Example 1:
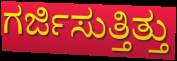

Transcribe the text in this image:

ಗರ್ಜಿಸುತ್ತಿತ್ತು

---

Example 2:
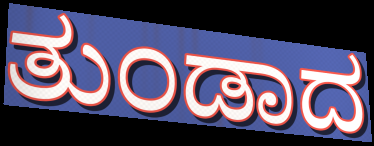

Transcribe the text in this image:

ತುಂಡಾದ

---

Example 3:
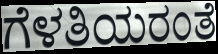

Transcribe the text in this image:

ಗೆಳತಿಯರಂತೆ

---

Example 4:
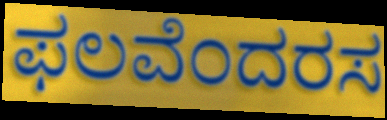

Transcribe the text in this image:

ಫಲವೆಂದರಸ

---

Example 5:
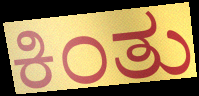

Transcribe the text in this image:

ಕಿಂತು